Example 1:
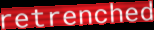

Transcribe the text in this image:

retrenched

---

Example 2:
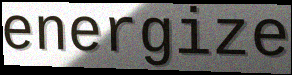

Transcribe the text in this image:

energize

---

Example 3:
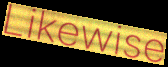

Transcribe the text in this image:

Likewise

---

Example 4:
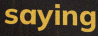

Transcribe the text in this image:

saying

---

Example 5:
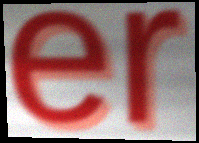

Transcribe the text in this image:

er